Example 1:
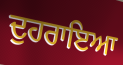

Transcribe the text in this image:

ਦੁਹਰਾਇਆ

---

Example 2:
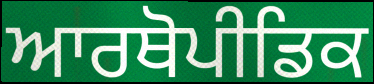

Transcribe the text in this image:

ਆਰਥੋਪੀਡਿਕ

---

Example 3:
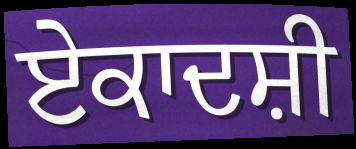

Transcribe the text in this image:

ਏਕਾਦਸ਼ੀ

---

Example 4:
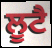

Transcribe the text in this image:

ਲੂਟੈ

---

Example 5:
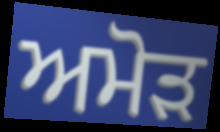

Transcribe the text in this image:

ਅਮੋੜ